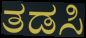
ತಡಸಿ